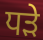
ਧੜੇ